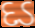
દડ